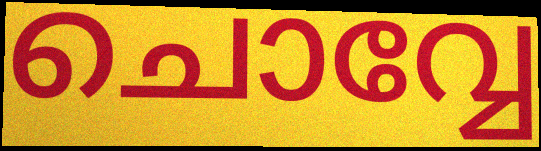
ചൊവ്വേ